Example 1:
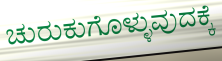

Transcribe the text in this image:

ಚುರುಕುಗೊಳ್ಳುವುದಕ್ಕೆ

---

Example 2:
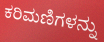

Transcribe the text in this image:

ಕರಿಮಣಿಗಳನ್ನು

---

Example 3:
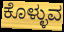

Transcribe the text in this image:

ಕೊಳ್ಳುವ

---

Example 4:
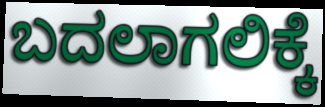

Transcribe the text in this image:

ಬದಲಾಗಲಿಕ್ಕೆ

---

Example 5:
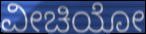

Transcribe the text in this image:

ವೀಚಿಯೋ